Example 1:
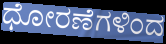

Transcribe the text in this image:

ಧೋರಣೆಗಳಿಂದ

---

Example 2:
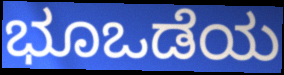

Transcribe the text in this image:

ಭೂಒಡೆಯ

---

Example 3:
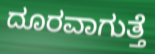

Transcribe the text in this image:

ದೂರವಾಗುತ್ತೆ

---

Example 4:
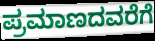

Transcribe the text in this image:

ಪ್ರಮಾಣದವರೆಗೆ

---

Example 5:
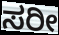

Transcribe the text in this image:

ಸರೀ